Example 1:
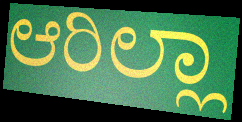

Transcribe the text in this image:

ಆರಿಲ್ಲಾ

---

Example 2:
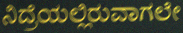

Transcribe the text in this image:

ನಿದ್ರೆಯಲ್ಲಿರುವಾಗಲೇ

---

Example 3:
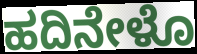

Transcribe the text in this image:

ಹದಿನೇಳೊ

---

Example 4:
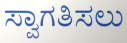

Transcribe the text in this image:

ಸ್ವಾಗತಿಸಲು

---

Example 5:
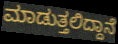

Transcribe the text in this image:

ಮಾಡುತ್ತಲಿದ್ದಾನೆ